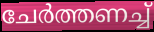
ചേർത്തണച്ച്